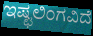
ಇಷ್ಟಲಿಂಗವಿದೆ